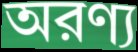
অরণ্য